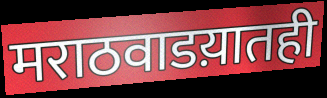
मराठवाडय़ातही